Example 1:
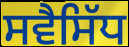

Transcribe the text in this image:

ਸਵੈਸਿੱਧ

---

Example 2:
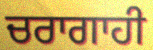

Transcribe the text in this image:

ਚਰਾਗਾਹੀ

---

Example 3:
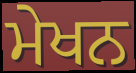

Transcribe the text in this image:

ਮੇਖਨ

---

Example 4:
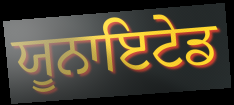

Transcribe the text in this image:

ਯੂਨਾਇਟੇਡ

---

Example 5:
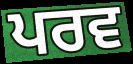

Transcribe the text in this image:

ਪਰਵ